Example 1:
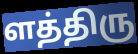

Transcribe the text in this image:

ளத்திரு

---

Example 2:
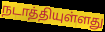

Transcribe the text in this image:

நடாத்தியுள்ளது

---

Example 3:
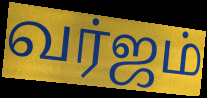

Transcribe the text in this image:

வர்ஜம்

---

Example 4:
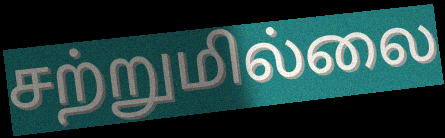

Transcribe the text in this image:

சற்றுமில்லை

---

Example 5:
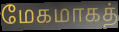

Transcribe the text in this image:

மேகமாகத்